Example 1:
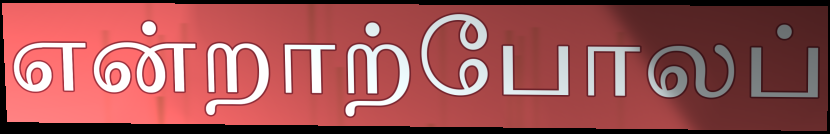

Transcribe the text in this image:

என்றாற்போலப்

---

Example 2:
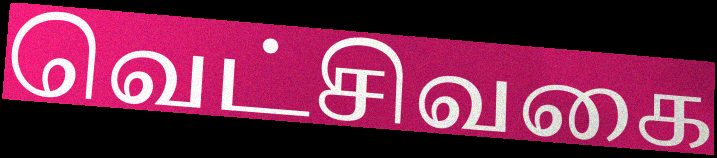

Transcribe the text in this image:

வெட்சிவகை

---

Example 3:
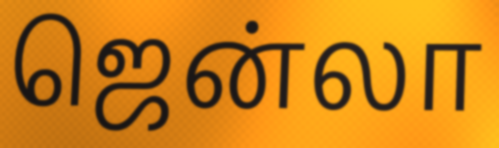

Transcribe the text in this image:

ஜென்லா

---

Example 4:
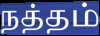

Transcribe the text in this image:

நத்தம்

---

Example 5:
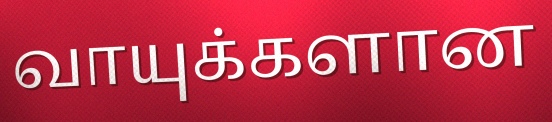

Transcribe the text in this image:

வாயுக்களான